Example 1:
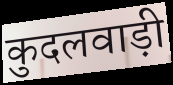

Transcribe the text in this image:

कुदलवाड़ी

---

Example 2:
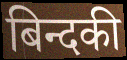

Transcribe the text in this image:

बिन्दकी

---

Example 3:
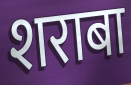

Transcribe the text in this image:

शराबा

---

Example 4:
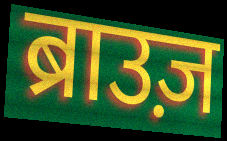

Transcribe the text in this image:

ब्राउज़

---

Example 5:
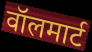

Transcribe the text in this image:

वॉलमार्ट